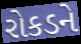
રોકડને